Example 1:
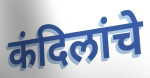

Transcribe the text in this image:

कंदिलांचे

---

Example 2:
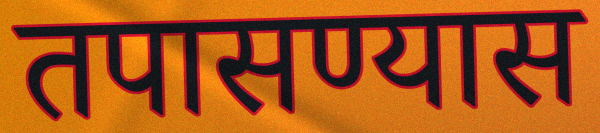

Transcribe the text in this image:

तपासण्यास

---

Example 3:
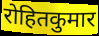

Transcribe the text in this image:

रोहितकुमार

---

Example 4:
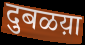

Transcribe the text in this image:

दुबळय़ा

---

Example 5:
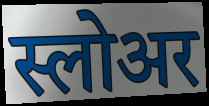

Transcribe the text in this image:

स्लोअर